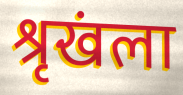
श्रृखंला